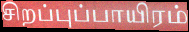
சிறப்புப்பாயிரம்